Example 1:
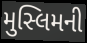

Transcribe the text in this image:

મુસ્લિમની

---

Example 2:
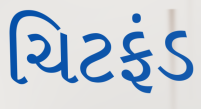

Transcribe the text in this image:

ચિટફંડ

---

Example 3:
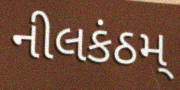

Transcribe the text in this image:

નીલકંઠમ્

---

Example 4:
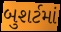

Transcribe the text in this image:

બુશર્ટમાં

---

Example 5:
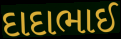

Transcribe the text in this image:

દાદાભાઈ